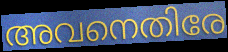
അവനെതിരേ